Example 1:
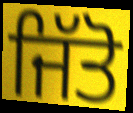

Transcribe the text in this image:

ਜਿੱਤੋ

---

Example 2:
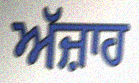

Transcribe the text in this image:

ਅੱਜ਼ਾਹ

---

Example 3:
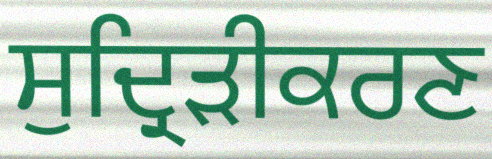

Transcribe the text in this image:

ਸੁਦ੍ਰਿੜੀਕਰਣ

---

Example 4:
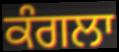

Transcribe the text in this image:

ਕੰਗਲਾ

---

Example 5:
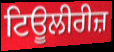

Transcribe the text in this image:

ਟਿਊਲੀਰੀਜ਼